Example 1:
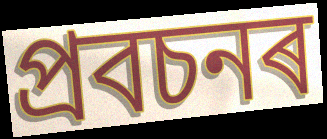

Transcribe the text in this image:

প্ৰবচনৰ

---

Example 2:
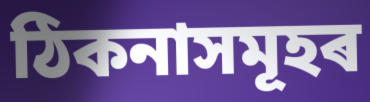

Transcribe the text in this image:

ঠিকনাসমূহৰ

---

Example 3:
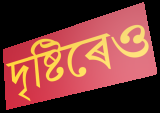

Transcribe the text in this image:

দৃষ্টিৰেও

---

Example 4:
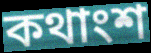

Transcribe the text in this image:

কথাংশ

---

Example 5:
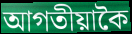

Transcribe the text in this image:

আগতীয়াকৈ